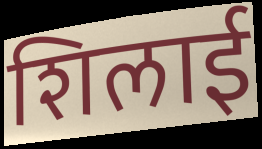
शिलाई